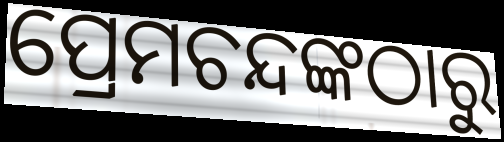
ପ୍ରେମଚନ୍ଦଙ୍କଠାରୁ